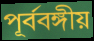
পূর্ববঙ্গীয়